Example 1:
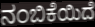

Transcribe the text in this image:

ನಂಬಿಕೆಯಿದೆ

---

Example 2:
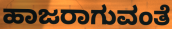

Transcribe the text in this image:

ಹಾಜರಾಗುವಂತೆ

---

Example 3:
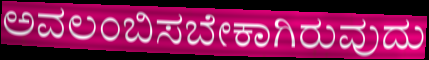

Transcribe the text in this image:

ಅವಲಂಬಿಸಬೇಕಾಗಿರುವುದು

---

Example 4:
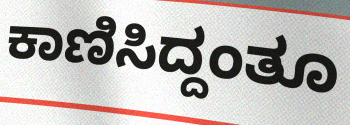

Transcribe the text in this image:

ಕಾಣಿಸಿದ್ದಂತೂ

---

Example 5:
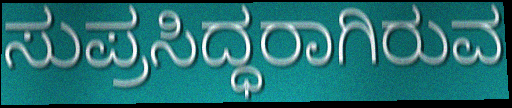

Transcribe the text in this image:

ಸುಪ್ರಸಿದ್ಧರಾಗಿರುವ